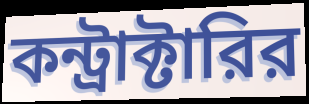
কন্ট্রাক্টারির